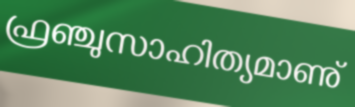
ഫ്രഞ്ചുസാഹിത്യമാണു്